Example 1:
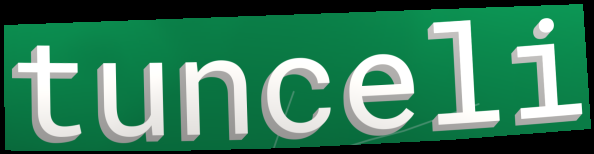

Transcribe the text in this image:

tunceli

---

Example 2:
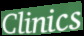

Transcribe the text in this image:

Clinics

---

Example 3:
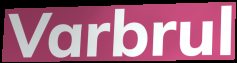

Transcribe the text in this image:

Varbrul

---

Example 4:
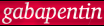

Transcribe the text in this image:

gabapentin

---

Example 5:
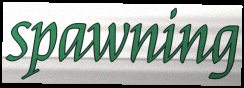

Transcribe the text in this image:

spawning